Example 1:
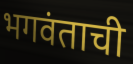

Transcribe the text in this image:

भगवंताची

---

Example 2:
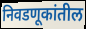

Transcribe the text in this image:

निवडणूकांतील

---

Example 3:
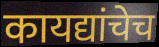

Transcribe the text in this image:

कायद्यांचेच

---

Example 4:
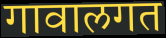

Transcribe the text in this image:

गावालगत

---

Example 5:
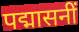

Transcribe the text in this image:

पद्मासनीं